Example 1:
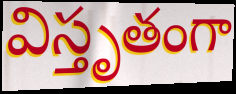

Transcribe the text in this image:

విస్తృతంగా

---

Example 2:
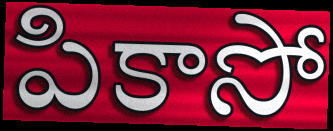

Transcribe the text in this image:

పికాసో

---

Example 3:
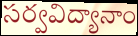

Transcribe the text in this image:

సర్వవిద్యానాం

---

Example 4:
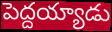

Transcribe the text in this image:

పెద్దయ్యాడు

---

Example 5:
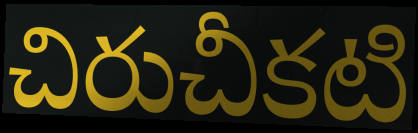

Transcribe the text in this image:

చిరుచీకటి